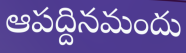
ఆపద్దినమందు